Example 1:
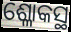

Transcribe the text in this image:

ଶ୍ଳୋକସ୍ଥ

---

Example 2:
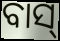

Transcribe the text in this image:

ବାସ୍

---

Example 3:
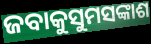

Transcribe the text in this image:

ଜବାକୁସୁମସଙ୍କାଶ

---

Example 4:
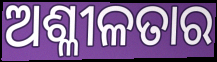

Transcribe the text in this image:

ଅଶ୍ଳୀଳତାର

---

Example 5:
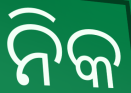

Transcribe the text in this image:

ନିକ